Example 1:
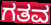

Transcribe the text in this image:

ಗತವ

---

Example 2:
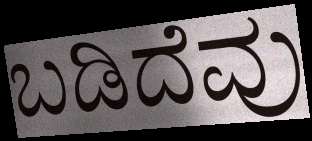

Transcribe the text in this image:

ಬಡಿದೆವು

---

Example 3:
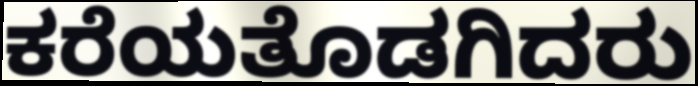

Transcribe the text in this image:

ಕರೆಯತೊಡಗಿದರು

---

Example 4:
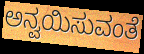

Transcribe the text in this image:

ಅನ್ವಯಿಸುವಂತೆ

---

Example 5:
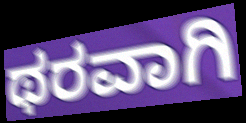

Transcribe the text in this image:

ಥರವಾಗಿ